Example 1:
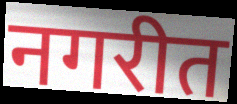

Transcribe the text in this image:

नगरीत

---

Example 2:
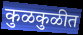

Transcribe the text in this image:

कुळकुळीत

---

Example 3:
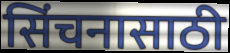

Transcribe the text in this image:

सिंचनासाठी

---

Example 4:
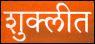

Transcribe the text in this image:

शुक्लीत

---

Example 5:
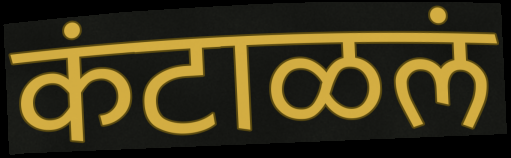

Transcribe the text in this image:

कंटाळलं